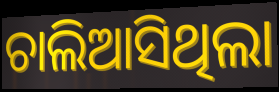
ଚାଲିଆସିଥିଲା